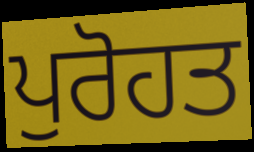
ਪੁਰੋਹਤ